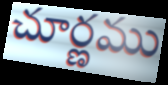
చూర్ణము